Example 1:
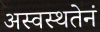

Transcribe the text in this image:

अस्वस्थतेनं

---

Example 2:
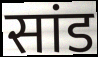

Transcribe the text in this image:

सांड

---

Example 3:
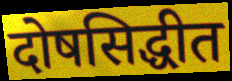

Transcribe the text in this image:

दोषसिद्धीत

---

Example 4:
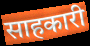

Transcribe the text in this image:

साहकारी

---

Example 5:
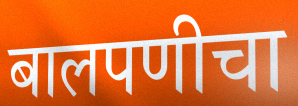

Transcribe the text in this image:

बालपणीचा